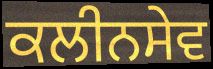
ਕਲੀਨਸੇਵ